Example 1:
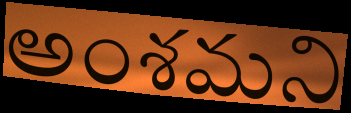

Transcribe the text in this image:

అంశమని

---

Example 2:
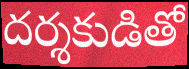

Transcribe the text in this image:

దర్శకుడితో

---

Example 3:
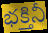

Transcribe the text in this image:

భక్తినీ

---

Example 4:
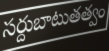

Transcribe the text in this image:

సర్దుబాటుతత్వం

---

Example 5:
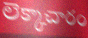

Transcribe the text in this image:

లెక్కాచారం